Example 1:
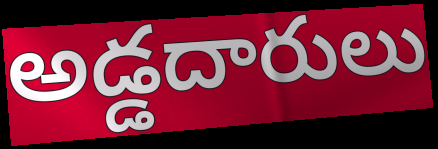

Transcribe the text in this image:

అడ్డదారులు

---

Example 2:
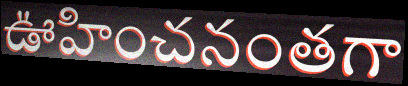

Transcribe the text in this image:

ఊహించనంతగా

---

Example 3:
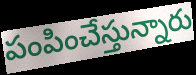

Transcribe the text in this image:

పంపించేస్తున్నారు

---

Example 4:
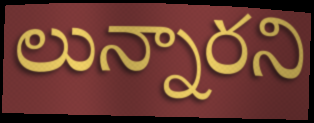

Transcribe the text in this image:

లున్నారని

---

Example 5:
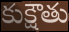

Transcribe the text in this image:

కుక్షౌతు